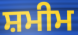
ਸ਼ਮੀਮ